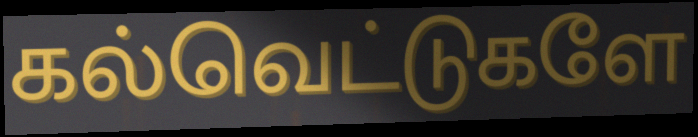
கல்வெட்டுகளே